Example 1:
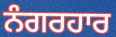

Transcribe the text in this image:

ਨੰਗਰਹਾਰ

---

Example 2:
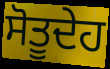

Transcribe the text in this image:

ਸੋਤੂਦੇਹ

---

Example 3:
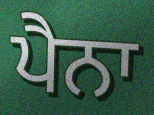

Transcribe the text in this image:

ਪੈਨਾ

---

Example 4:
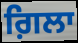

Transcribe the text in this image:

ਗ਼ਿਲਾ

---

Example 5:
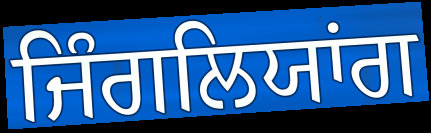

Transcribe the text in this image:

ਜਿੰਗਲਿਯਾਂਗ